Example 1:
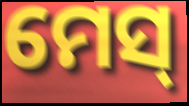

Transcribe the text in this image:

ମେସ୍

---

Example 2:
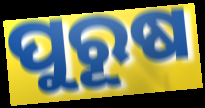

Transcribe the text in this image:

ପୁରୂଷ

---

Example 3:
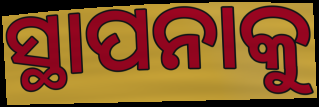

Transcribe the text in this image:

ସ୍ଥାପନାକୁ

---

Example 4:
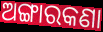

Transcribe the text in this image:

ଅଙ୍ଗାରକଣା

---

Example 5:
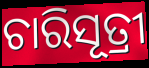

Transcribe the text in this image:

ଚାରିସୂତ୍ରୀ